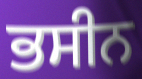
ਭਸੀਨ